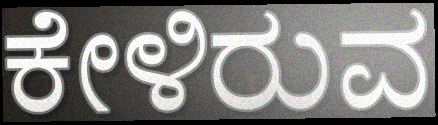
ಕೇಳಿರುವ